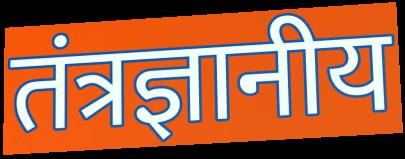
तंत्रज्ञानीय